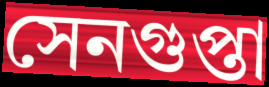
সেনগুপ্তা